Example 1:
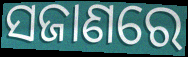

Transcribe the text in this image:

ସଜାଣରେ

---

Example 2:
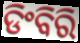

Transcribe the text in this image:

ଡିଂବିରି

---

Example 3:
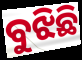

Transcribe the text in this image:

ବୁଝିଛି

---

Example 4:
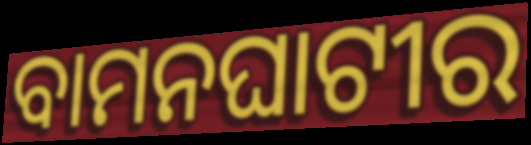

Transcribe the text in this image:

ବାମନଘାଟୀର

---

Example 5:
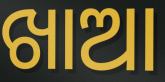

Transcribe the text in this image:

ଖାଆ